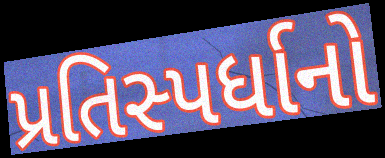
પ્રતિસ્પર્ધાનો